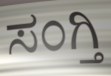
ಸಂಗ್ತಿ